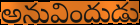
అనువిందుడు